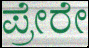
ಪ್ರೇರೇ